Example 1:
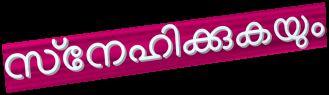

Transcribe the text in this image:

സ്‌നേഹിക്കുകയും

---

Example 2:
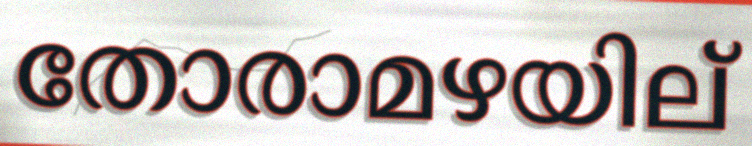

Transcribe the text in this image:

തോരാമഴയില്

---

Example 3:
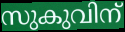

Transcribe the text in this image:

സുകുവിന്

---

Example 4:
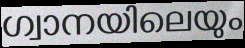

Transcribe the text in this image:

ഗ്വാനയിലെയും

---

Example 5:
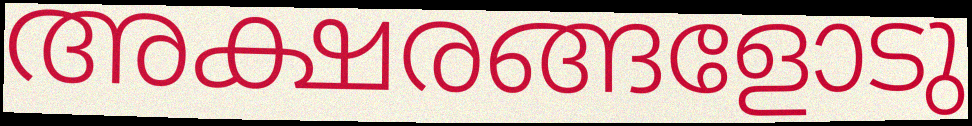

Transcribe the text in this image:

അക്ഷരങ്ങളോടു